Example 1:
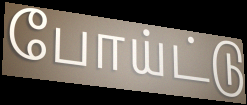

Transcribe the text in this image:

போய்ட்டு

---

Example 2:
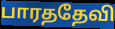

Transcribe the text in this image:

பாரததேவி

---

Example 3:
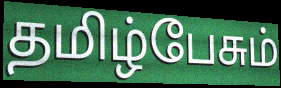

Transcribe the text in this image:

தமிழ்பேசும்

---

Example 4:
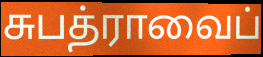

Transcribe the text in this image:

சுபத்ராவைப்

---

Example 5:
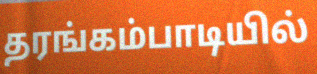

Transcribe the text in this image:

தரங்கம்பாடியில்